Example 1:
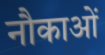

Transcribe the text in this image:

नौकाओं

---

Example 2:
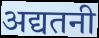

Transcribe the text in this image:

अद्यतनी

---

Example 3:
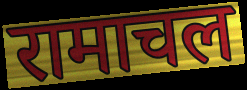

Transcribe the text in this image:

रामाचल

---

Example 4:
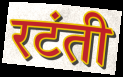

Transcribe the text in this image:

रटंती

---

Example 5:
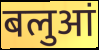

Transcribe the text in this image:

बलुआं